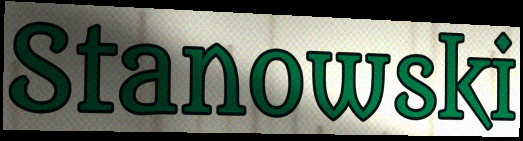
Stanowski